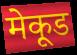
मेकूड